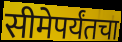
सीमेपर्यंतचा